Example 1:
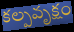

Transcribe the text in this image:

కల్పవృక్షం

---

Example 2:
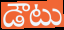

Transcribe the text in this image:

డౌటు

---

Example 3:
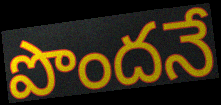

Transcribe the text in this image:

పొందనే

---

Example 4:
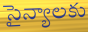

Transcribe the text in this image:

సైన్యాలకు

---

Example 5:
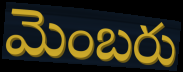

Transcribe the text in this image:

మెంబరు